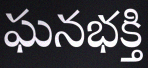
ఘనభక్తి